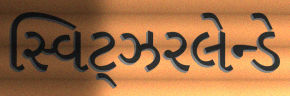
સ્વિટ્ઝરલેન્ડે